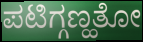
ಪಟಿಗ್ಗಣ್ಹತೋ